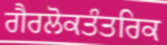
ਗੈਰਲੋਕਤੰਤਰਿਕ